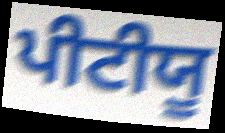
ਪੀਟੀਯੂ